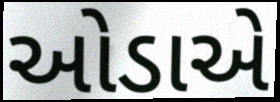
ઓડાએ